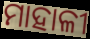
ମାହାଳୀ